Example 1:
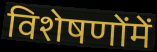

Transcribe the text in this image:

विशेषणोंमें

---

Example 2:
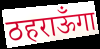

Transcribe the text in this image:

ठहराऊँगा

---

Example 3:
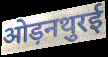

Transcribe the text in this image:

ओड़नथुरई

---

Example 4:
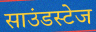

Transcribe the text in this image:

साउंडस्टेज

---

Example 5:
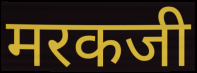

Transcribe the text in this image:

मरकजी